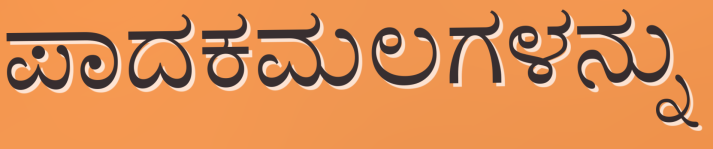
ಪಾದಕಮಲಗಳನ್ನು